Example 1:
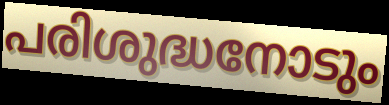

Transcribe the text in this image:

പരിശുദ്ധനോടും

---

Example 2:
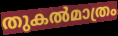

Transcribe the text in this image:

തുകൽമാത്രം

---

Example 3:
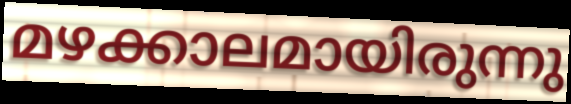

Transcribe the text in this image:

മഴക്കാലമായിരുന്നു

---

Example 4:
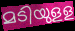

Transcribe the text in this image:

മടിയുളള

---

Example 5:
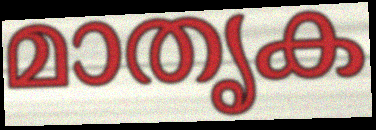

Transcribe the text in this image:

മാതൃക